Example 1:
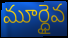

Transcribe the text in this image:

మూర్ధైవ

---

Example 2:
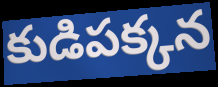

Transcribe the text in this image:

కుడిపక్కన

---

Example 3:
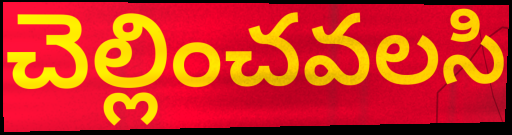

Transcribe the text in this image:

చెల్లించవలసి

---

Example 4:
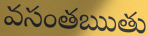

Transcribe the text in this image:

వసంతఋతు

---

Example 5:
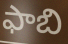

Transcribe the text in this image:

ఫాబి